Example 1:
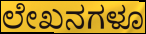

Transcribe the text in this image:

ಲೇಖನಗಳೂ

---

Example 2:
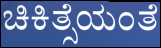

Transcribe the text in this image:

ಚಿಕಿತ್ಸೆಯಂತೆ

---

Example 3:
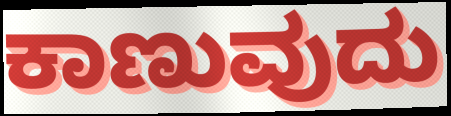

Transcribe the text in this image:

ಕಾಣುವುದು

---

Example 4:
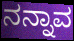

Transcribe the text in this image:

ನನ್ನಾವ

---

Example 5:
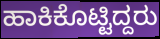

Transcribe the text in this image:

ಹಾಕಿಕೊಟ್ಟಿದ್ದರು